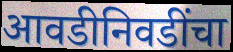
आवडीनिवडींचा